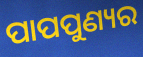
ପାପପୁଣ୍ୟର